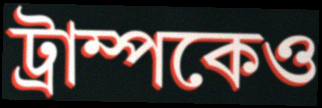
ট্রাম্পকেও